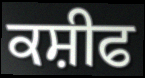
ਕਸ਼ੀਫ